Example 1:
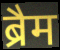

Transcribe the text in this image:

ब्रैम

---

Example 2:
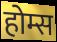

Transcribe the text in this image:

होम्स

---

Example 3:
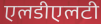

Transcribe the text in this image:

एलडीएलटी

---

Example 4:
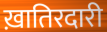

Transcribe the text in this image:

ख़ातिरदारी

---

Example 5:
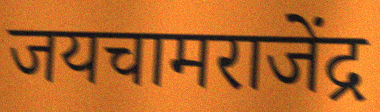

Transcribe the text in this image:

जयचामराजेंद्र